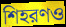
শিহরণও